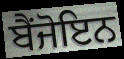
ਬੈਂਜੋਇਨ